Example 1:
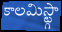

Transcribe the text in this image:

కాలమిస్ట్గా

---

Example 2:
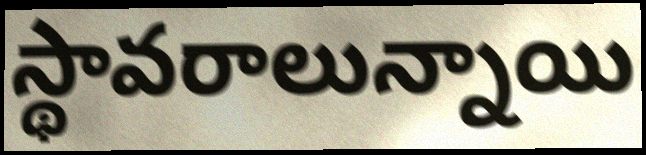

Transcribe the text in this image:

స్థావరాలున్నాయి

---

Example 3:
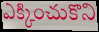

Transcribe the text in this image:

ఎక్కించుకొని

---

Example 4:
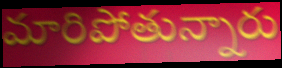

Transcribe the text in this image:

మారిపోతున్నారు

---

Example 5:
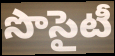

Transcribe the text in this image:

సొసైటీ